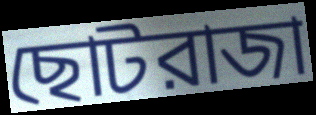
ছোটরাজা